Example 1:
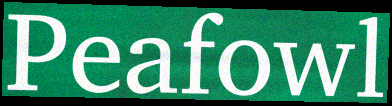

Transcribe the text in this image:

Peafowl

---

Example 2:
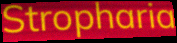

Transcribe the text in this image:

Stropharia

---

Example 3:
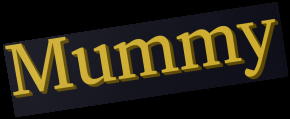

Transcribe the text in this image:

Mummy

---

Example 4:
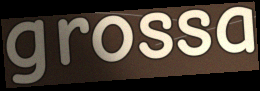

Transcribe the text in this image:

grossa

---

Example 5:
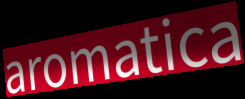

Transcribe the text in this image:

aromatica